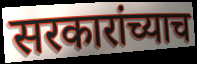
सरकारांच्याच